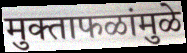
मुक्ताफळांमुळे